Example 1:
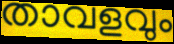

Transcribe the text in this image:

താവളവും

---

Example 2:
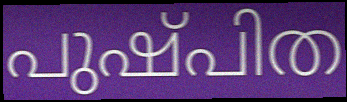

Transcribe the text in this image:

പുഷ്പിത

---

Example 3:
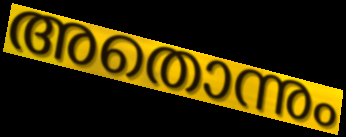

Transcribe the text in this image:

അതൊന്നും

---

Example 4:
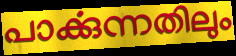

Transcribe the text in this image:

പാൎക്കുന്നതിലും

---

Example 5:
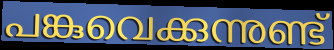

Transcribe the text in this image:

പങ്കുവെക്കുന്നുണ്ട്